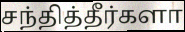
சந்தித்தீர்களா